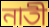
নাতী